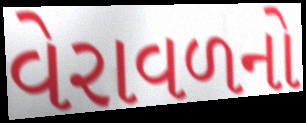
વેરાવળનો